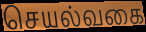
செயல்வகை